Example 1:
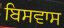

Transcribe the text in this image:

ਬਿਸਵਾਸ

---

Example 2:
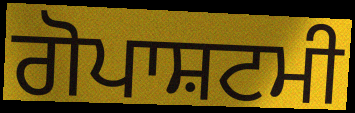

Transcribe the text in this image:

ਗੋਪਾਸ਼ਟਮੀ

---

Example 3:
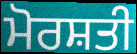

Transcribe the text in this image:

ਮੋਰਸ਼ਤੀ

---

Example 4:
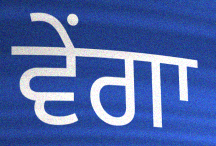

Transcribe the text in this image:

ਵੇਂਗਾ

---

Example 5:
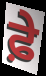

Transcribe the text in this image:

ਫ਼ੇ